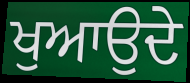
ਖੁਆਉਦੇ